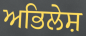
ਅਭਿਲੇਸ਼